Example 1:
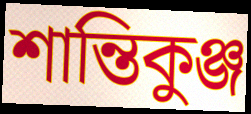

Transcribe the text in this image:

শান্তিকুঞ্জ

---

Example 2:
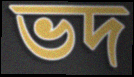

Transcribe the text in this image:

ভদ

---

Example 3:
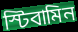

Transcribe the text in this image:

স্টিবামিন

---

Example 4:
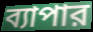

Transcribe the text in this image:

ব্যাপার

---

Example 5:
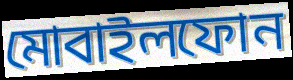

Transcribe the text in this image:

মোবাইলফোন